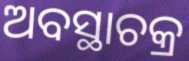
ଅବସ୍ଥାଚକ୍ର